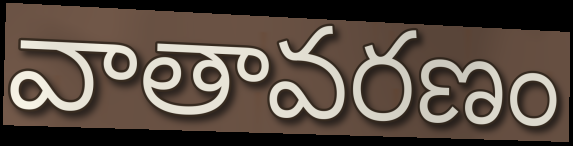
వాతావరణం